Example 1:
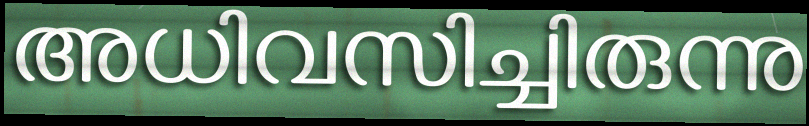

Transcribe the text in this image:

അധിവസിച്ചിരുന്നു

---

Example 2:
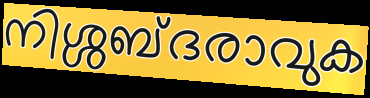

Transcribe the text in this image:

നിശ്ശബ്ദരാവുക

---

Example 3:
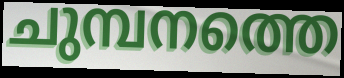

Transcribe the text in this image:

ചുമ്പനത്തെ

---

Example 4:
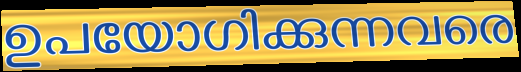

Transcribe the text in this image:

ഉപയോഗിക്കുന്നവരെ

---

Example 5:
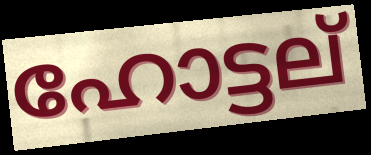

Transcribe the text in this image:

ഹോട്ടല്